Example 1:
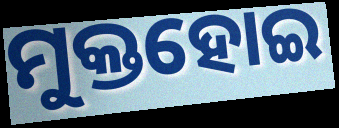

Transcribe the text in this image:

ମୁକ୍ତହୋଇ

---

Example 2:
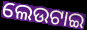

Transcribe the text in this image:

ଲେଉଟାଇ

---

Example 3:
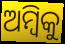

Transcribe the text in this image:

ଅମ୍ବିକୁ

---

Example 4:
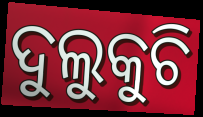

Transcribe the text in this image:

ଦୁଲୁକୁଚି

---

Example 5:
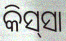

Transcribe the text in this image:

କିସ୍‍ସା